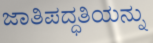
ಜಾತಿಪದ್ಧತಿಯನ್ನು